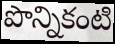
పొన్నికంటి